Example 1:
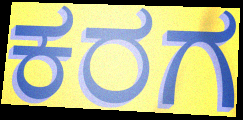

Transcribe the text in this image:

ಕರಗ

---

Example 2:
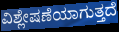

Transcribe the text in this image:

ವಿಶ್ಲೇಷಣೆಯಾಗುತ್ತದೆ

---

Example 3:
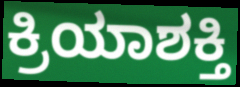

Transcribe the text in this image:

ಕ್ರಿಯಾಶಕ್ತಿ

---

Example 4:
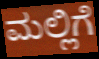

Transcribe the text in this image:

ಮಲ್ಲಿಗೆ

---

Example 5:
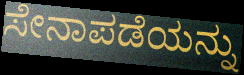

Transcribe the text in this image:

ಸೇನಾಪಡೆಯನ್ನು